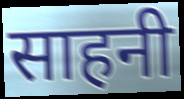
साहनी